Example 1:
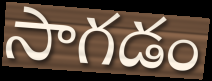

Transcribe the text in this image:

సాగడం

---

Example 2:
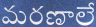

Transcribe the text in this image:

మరణాలే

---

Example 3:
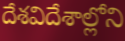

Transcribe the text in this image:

దేశవిదేశాల్లోని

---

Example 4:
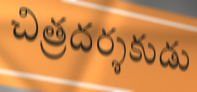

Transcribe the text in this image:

చిత్రదర్శకుడు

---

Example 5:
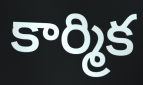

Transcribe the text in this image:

కార్మిక